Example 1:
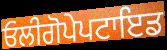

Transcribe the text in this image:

ਓਲੀਗੋਪੇਪਟਾਇਡ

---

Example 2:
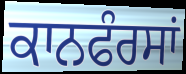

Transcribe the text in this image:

ਕਾਨਫੰਰਸਾਂ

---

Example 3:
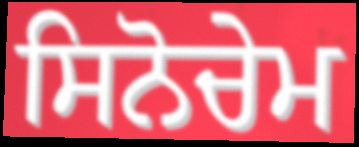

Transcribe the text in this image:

ਸਿਨੋਚੇਮ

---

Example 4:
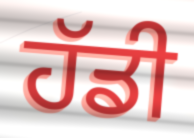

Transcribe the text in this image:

ਹੱਡੀ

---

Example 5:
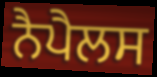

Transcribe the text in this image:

ਨੈਪੈਲਸ